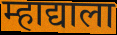
म्हाद्याला